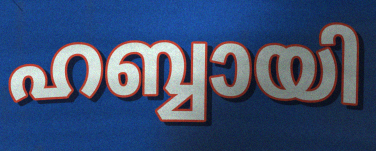
ഹബ്ബായി